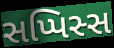
સપ્પિસ્સ